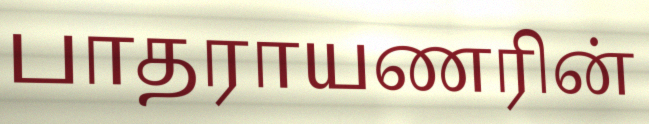
பாதராயணரின்